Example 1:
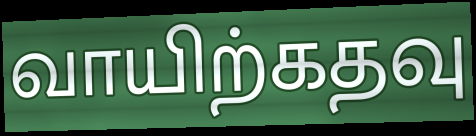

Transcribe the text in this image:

வாயிற்கதவு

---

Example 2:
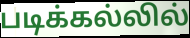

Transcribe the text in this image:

படிக்கல்லில்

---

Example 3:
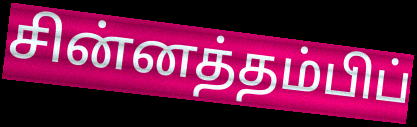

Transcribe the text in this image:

சின்னத்தம்பிப்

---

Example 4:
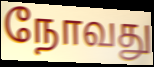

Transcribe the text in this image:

நோவது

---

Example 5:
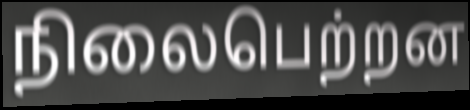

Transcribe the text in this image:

நிலைபெற்றன